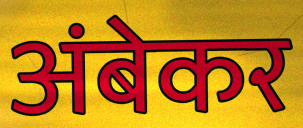
अंबेकर